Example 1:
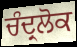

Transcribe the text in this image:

ਚੰਦ੍ਰਲੋਕ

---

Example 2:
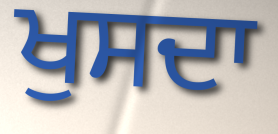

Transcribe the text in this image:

ਖੁਸਦਾ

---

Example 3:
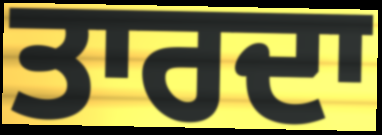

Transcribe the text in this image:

ਤਾਰਦਾ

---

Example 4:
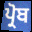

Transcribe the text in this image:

ਪ੍ਰੋਬ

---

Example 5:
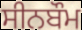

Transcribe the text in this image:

ਸੀਨਬੌਮ